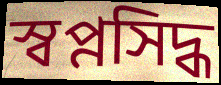
স্বপ্নসিদ্ধ